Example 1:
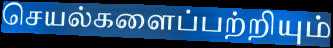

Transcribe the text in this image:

செயல்களைப்பற்றியும்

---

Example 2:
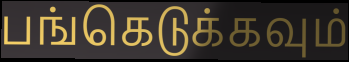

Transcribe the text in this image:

பங்கெடுக்கவும்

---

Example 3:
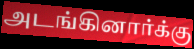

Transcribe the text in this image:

அடங்கினார்க்கு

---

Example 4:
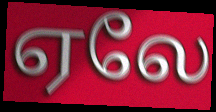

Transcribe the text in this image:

ஏலே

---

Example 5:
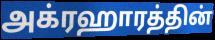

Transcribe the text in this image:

அக்ரஹாரத்தின்